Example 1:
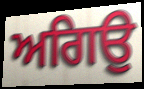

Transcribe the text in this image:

ਅਗਿਉ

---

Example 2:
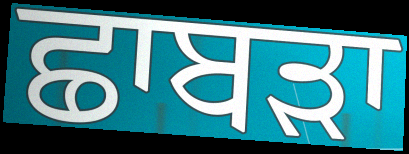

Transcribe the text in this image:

ਛਾਬੜਾ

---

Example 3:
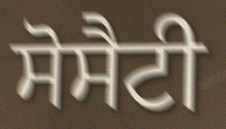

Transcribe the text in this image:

ਸੋਸੈਟੀ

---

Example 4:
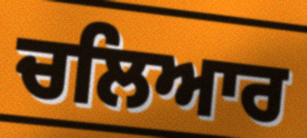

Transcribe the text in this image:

ਚਲਿਆਰ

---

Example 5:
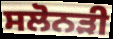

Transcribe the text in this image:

ਸਲੋਨੜੀ